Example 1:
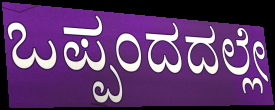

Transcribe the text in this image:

ಒಪ್ಪಂದದಲ್ಲೇ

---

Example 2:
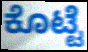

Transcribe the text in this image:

ಕೊಟ್ಟೆ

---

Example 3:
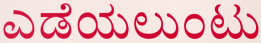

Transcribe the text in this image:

ಎಡೆಯಲುಂಟು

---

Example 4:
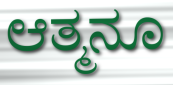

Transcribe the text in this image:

ಆತ್ಮನೂ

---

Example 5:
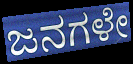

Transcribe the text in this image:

ಜನಗಳೇ